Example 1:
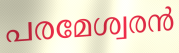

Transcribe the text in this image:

പരമേശ്വരൻ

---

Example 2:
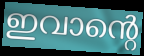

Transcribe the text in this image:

ഇവാന്റെ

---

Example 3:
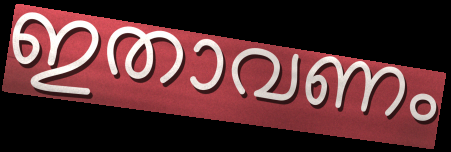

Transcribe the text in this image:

ഇതാവണം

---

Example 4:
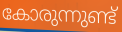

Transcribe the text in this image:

കോരുന്നുണ്ട്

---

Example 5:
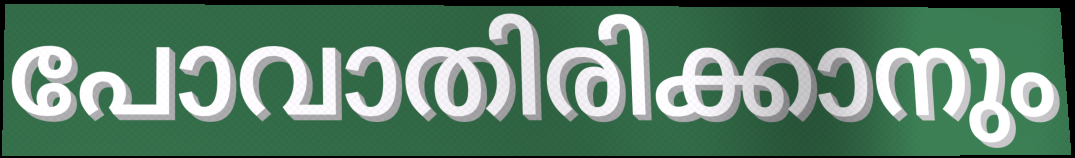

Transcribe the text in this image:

പോവാതിരിക്കാനും